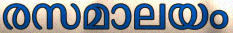
രസമാലയം